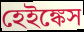
হেইঙ্কেস